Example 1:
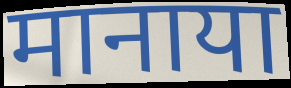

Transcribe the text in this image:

मानाया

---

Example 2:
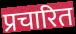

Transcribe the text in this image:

प्रचारित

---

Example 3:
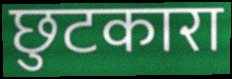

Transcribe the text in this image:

छुटकारा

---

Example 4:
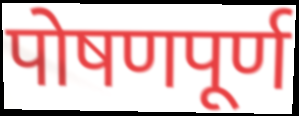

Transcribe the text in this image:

पोषणपूर्ण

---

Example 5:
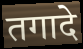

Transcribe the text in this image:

तगादे